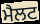
ਮੈਲਟ